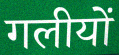
गलीयों